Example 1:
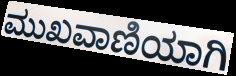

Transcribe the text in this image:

ಮುಖವಾಣಿಯಾಗಿ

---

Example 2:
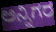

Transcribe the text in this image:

ಅನ್ನಿಗರ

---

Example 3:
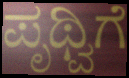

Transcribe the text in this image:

ಪೃಥ್ವಿಗೆ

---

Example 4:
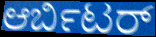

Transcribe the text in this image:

ಆರ್ಬಿಟರ್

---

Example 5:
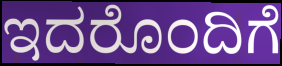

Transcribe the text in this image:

ಇದರೊಂದಿಗೆ